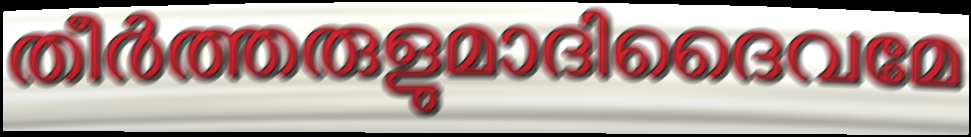
തീർത്തരുളുമാദിദൈവമേ